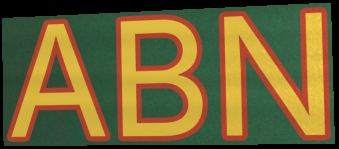
ABN